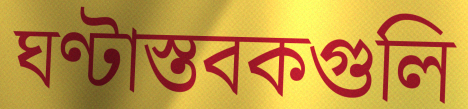
ঘণ্টাস্তবকগুলি